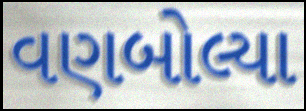
વણબોલ્યા